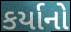
કર્યાનો